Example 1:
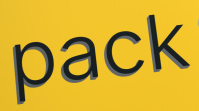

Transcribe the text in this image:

pack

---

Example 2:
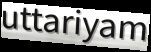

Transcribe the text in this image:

uttariyam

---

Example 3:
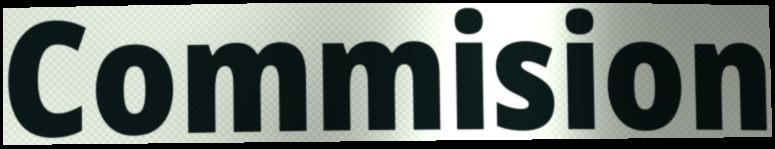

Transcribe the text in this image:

Commision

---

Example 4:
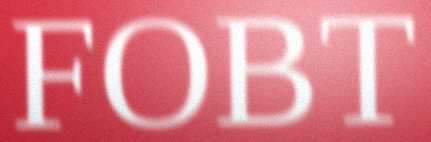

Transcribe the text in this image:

FOBT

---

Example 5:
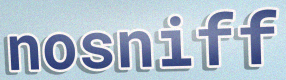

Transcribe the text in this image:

nosniff